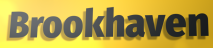
Brookhaven